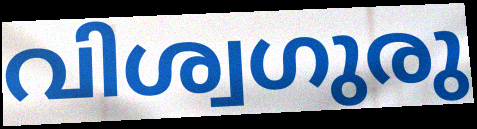
വിശ്വഗുരു